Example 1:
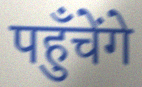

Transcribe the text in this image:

पहुँचेंगे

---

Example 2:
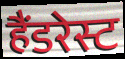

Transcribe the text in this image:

हैंडरेस्ट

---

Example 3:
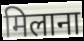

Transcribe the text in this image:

मिलाना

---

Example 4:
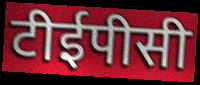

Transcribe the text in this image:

टीईपीसी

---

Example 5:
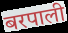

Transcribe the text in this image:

बरपाली